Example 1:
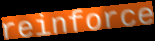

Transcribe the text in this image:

reinforce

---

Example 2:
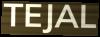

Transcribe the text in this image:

TEJAL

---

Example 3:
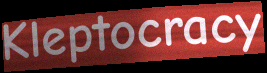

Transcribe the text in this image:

Kleptocracy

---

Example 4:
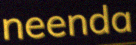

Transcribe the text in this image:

neenda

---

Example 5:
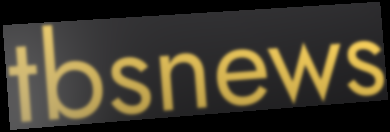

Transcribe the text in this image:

tbsnews